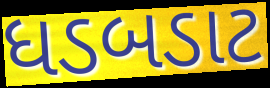
ધડબડાટ